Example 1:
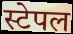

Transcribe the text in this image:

स्टेपल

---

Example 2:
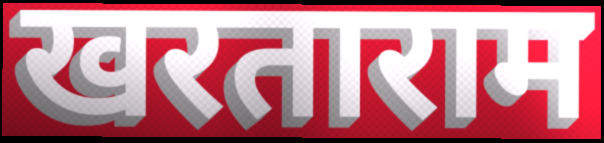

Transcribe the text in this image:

खरताराम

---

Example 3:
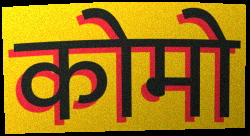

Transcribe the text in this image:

कोमो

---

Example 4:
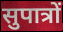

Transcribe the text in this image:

सुपात्रों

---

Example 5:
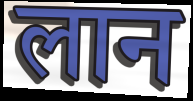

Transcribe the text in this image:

लान